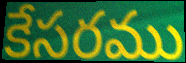
కేసరము